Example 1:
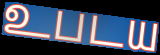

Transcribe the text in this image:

உபடய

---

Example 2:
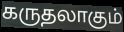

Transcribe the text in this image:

கருதலாகும்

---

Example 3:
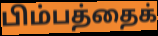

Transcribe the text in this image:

பிம்பத்தைக்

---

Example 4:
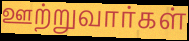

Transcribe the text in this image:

ஊற்றுவார்கள்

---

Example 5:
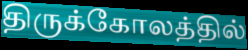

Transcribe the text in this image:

திருக்கோலத்தில்